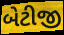
બેટીજી